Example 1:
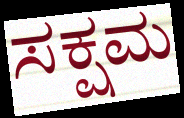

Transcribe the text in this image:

ಸಕ್ಷಮ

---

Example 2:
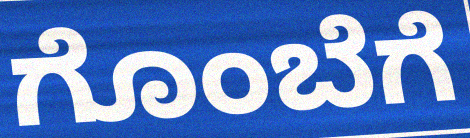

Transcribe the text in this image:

ಗೊಂಬೆಗೆ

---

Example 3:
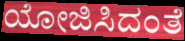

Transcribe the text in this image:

ಯೋಜಿಸಿದಂತೆ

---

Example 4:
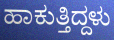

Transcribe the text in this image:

ಹಾಕುತ್ತಿದ್ದಳು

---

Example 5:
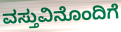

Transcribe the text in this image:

ವಸ್ತುವಿನೊಂದಿಗೆ